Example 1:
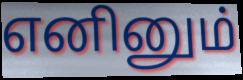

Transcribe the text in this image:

எனினும்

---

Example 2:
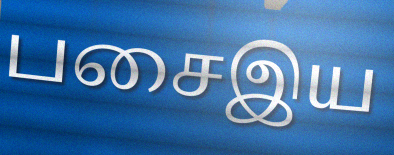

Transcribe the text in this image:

பசைஇய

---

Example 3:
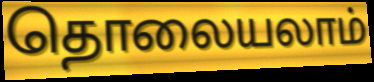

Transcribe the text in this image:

தொலையலாம்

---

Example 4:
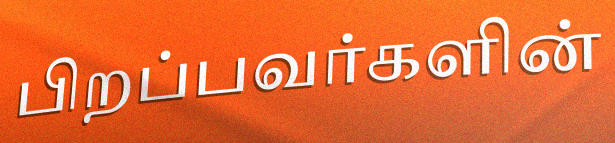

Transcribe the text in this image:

பிறப்பவர்களின்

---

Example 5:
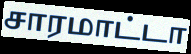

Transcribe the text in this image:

சாரமாட்டா